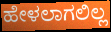
ಹೇಳಲಾಗಲಿಲ್ಲ